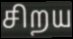
சிறய